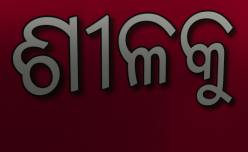
ଶୀଳକୁ